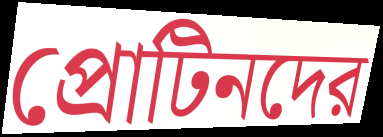
প্রোটিনদের